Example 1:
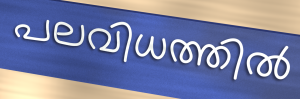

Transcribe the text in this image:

പലവിധത്തിൽ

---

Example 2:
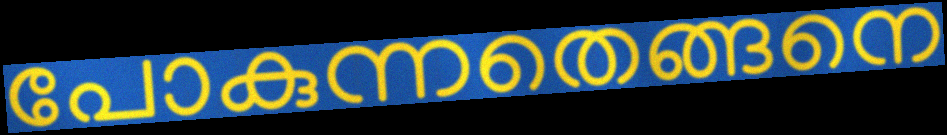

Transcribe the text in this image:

പോകുന്നതെങ്ങനെ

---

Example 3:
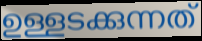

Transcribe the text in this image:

ഉള്ളടക്കുന്നത്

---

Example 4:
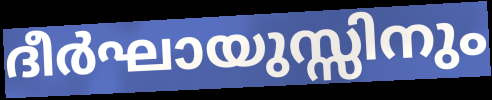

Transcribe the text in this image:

ദീർഘായുസ്സിനും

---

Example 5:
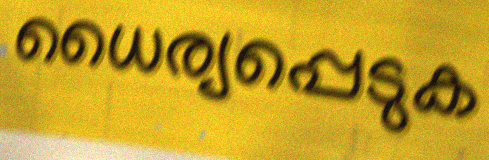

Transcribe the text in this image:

ധൈര്യപ്പെടുക